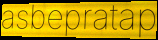
asbepratap